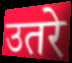
उतरे